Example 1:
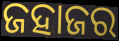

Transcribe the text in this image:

ଜହାଜର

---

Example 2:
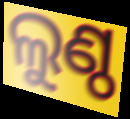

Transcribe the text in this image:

ଲୁଣ୍ଠ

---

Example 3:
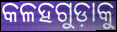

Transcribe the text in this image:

କଳହଗୁଡ଼ାକୁ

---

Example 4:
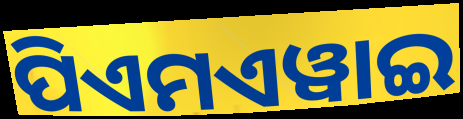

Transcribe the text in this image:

ପିଏମଏୱାଇ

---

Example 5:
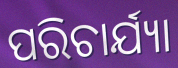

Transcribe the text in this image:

ପରିଚାର୍ଯ୍ୟା